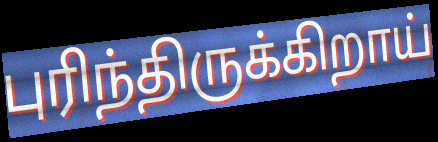
புரிந்திருக்கிறாய்